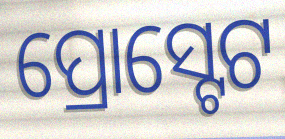
ପ୍ରୋସ୍ଟେଟ